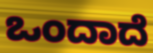
ಒಂದಾದೆ